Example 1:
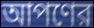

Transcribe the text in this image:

আপণের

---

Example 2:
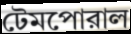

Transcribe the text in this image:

টেমপোরাল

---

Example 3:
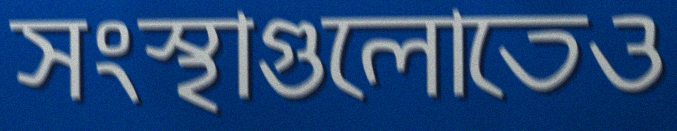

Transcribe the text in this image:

সংস্থাগুলোতেও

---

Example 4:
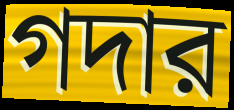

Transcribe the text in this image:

গদার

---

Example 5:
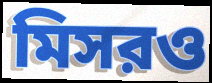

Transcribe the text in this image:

মিসরও